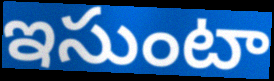
ఇసుంటా